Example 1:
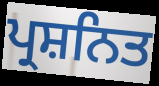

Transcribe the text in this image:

ਪ੍ਰਸ਼ਨਿਤ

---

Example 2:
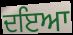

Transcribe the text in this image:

ਦਇਆ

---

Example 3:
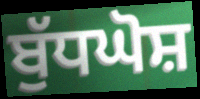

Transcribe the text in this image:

ਬੁੱਧਘੋਸ਼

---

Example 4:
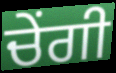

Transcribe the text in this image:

ਚੇਂਗੀ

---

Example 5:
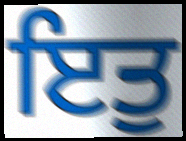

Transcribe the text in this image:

ਇਤੁ